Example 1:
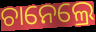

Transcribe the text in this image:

ଚାନେଲ୍ରେ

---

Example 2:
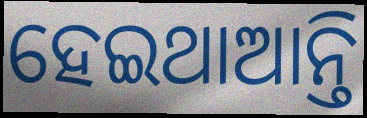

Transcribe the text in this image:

ହେଇଥାଆନ୍ତି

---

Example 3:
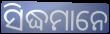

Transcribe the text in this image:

ସିଦ୍ଧମାନେ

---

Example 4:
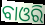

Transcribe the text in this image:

ବାଓରି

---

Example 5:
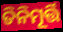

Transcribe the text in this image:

ତିନିମୂର୍ତ୍ତି